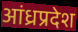
आंध्रप्रदेश